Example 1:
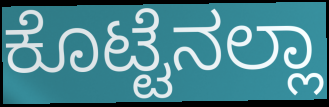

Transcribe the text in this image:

ಕೊಟ್ಟೆನಲ್ಲಾ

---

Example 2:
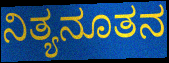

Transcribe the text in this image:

ನಿತ್ಯನೂತನ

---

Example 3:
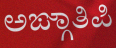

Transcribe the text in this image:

ಅಙ್ಗಾತಿಪಿ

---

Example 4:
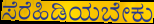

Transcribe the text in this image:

ಸೆರೆಹಿಡಿಯಬೇಕು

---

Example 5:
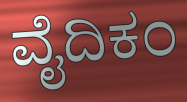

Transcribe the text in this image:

ವೈದಿಕಂ